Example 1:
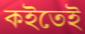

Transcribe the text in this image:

কইতেই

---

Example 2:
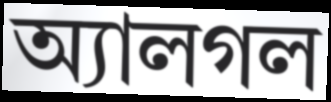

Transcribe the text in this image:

অ্যালগল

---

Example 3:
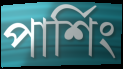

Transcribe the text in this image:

পার্শিং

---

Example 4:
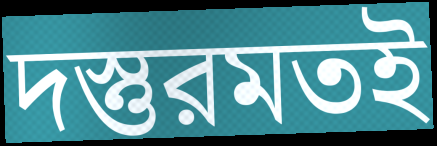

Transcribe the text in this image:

দস্তুরমতই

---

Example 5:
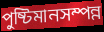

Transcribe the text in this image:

পুষ্টিমানসম্পন্ন